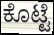
ಕೊಟ್ಟೆ